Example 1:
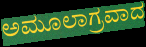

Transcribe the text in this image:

ಅಮೂಲಾಗ್ರವಾದ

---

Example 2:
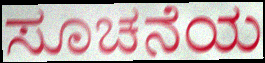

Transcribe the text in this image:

ಸೂಚನೆಯ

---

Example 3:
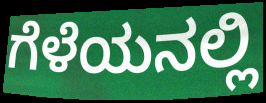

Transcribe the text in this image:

ಗೆಳೆಯನಲ್ಲಿ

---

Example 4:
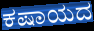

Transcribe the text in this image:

ಕಷಾಯದ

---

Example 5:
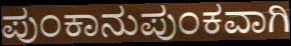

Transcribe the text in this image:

ಪುಂಕಾನುಪುಂಕವಾಗಿ